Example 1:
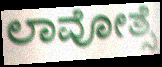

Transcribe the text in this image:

ಲಾವೋತ್ಸೆ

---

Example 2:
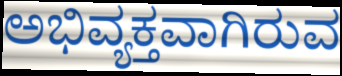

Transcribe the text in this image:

ಅಭಿವ್ಯಕ್ತವಾಗಿರುವ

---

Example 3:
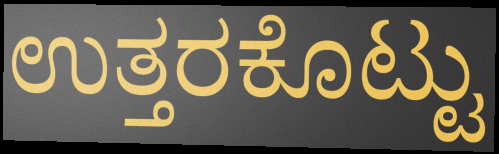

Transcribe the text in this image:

ಉತ್ತರಕೊಟ್ಟು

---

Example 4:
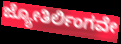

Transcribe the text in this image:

ಜ್ಯೋತಿರ್ಲಿಂಗವೇ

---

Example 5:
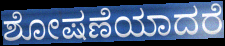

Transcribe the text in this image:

ಶೋಷಣೆಯಾದರೆ